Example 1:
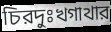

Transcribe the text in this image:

চিরদুঃখগাথার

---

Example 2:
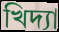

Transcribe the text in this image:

খিদ্যা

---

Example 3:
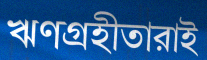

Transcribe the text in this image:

ঋণগ্রহীতারাই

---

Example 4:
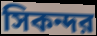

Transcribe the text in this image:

সিকন্দর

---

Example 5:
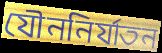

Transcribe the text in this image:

যৌননির্যাতন